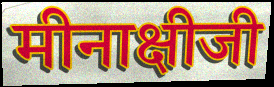
मीनाक्षीजी